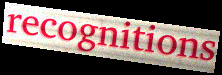
recognitions